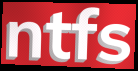
ntfs